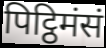
पिट्ठिमंसं